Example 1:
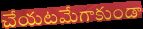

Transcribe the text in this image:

చేయటమేగాకుండా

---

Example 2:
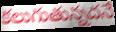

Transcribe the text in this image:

కలుగుతున్నదనే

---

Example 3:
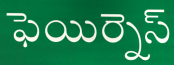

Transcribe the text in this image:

ఫెయిర్నెస్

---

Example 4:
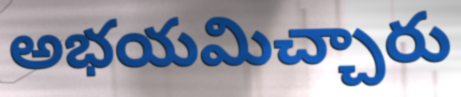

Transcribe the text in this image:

అభయమిచ్చారు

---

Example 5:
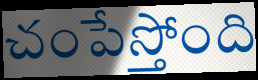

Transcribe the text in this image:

చంపేస్తోంది